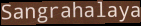
Sangrahalaya